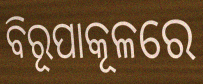
ବିରୂପାକୂଳରେ